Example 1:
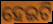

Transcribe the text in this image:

ହେଇଟି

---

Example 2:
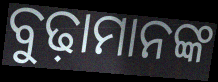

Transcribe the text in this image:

ବୁଢ଼ାମାନଙ୍କ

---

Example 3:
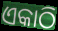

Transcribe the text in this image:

ଏକାଠି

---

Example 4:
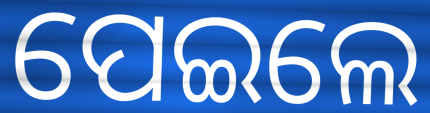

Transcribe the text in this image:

ପେଇଲେ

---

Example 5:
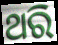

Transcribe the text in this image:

ଥରି